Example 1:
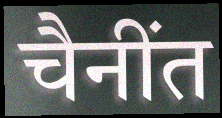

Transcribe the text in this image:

चैनींत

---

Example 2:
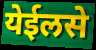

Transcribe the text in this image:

येईलसे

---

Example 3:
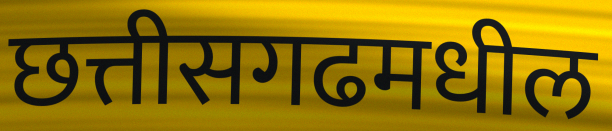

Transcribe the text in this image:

छत्तीसगढमधील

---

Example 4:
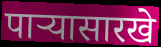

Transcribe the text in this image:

पाऱ्यासारखे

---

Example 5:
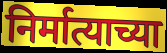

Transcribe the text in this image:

निर्मात्याच्या